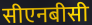
सीएनबीसी